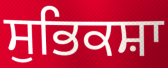
ਸੁਭਿਕਸ਼ਾ